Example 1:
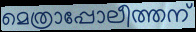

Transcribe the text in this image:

മെത്രാപ്പോലീത്തന്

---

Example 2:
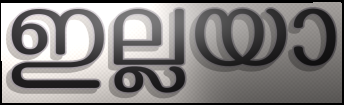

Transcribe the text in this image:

ഇല്ലയാ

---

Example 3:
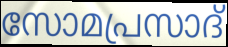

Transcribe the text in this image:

സോമപ്രസാദ്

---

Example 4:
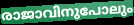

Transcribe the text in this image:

രാജാവിനുപോലും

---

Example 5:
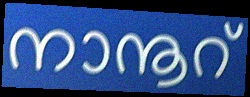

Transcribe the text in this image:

നാനൂറ്